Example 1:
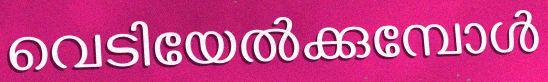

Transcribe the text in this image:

വെടിയേൽക്കുമ്പോൾ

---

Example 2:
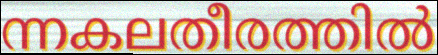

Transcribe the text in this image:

ന്നകലതീരത്തിൽ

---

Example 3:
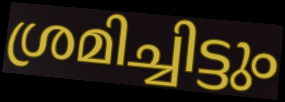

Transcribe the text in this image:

ശ്രമിച്ചിട്ടും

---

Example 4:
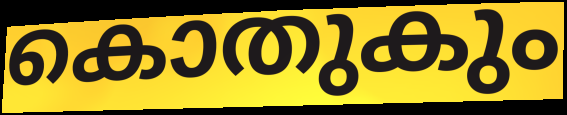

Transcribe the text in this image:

കൊതുകും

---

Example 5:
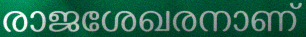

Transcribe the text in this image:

രാജശേഖരനാണ്